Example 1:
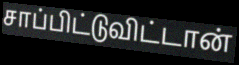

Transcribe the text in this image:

சாப்பிட்டுவிட்டான்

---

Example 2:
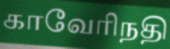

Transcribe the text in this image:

காவேரிநதி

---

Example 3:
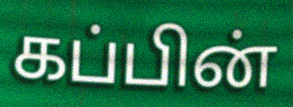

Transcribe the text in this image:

கப்பின்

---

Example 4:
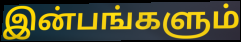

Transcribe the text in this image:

இன்பங்களும்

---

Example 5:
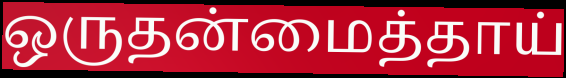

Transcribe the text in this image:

ஒருதன்மைத்தாய்